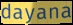
dayana